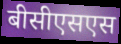
बीसीएसएस